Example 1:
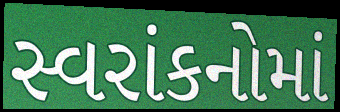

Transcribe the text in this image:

સ્વરાંકનોમાં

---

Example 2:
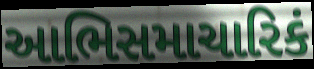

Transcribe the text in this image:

આભિસમાચારિકં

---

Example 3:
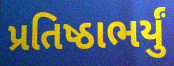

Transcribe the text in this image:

પ્રતિષ્ઠાભર્યું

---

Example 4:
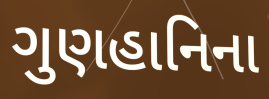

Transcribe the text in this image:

ગુણહાનિના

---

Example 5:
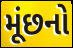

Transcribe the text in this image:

મૂંછનો